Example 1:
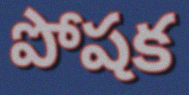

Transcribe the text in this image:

పోషక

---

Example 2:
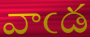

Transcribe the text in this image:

వాఁడ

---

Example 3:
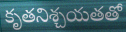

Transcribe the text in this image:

కృతనిశ్చయతతో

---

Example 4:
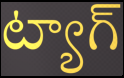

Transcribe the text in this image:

ట్యాగ్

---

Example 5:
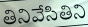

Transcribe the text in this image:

తినివేసితిని